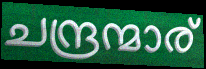
ചന്ദ്രന്മാര്